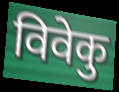
विवेकु